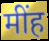
मींह